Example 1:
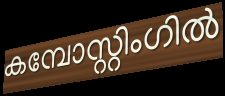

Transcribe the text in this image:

കമ്പോസ്റ്റിംഗിൽ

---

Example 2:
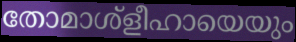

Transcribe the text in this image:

തോമാശ്ളീഹായെയും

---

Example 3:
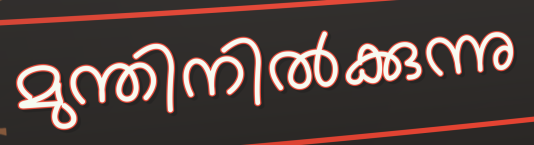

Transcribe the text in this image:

മുന്തിനിൽക്കുന്നു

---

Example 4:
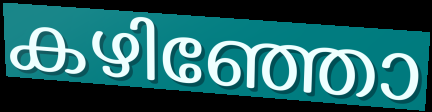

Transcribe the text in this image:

കഴിഞ്ഞോ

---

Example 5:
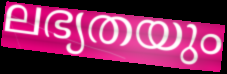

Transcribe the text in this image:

ലഭ്യതയും